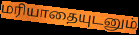
மரியாதையுடனும்